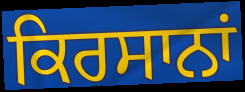
ਕਿਰਸਾਨਾਂ